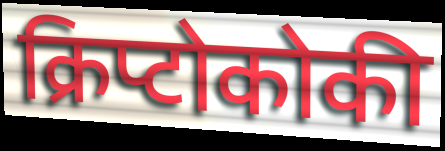
क्रिप्टोकोकी